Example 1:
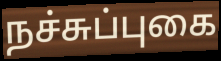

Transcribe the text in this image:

நச்சுப்புகை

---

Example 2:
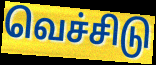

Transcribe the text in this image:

வெச்சிடு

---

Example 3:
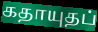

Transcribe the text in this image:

கதாயுதப்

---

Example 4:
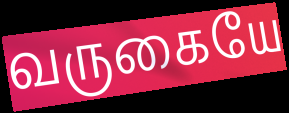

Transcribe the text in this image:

வருகையே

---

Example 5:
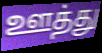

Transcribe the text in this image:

ஊத்து